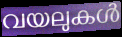
വയലുകൾ